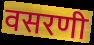
वसरणी